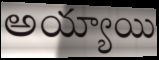
అయ్యాయి